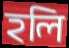
হলি